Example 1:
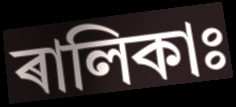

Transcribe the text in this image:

ৰালিকাঃ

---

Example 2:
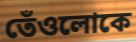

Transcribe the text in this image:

তেঁওলোকে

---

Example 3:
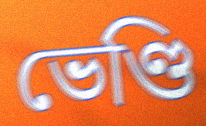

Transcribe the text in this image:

ভেণ্ডি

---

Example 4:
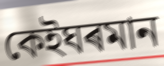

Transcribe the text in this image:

কেইঘৰমান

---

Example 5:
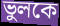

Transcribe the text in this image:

ভুলকে